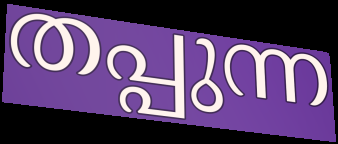
തപ്പുന്ന